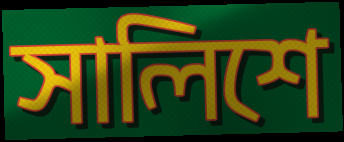
সালিশে